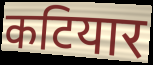
कटियार